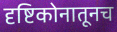
दृष्टिकोनातूनच